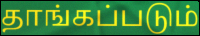
தாங்கப்படும்